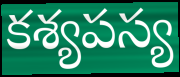
కశ్యపస్య